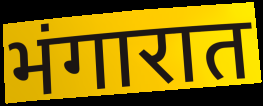
भंगारात